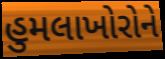
હુમલાખોરોને